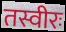
तस्वीरः